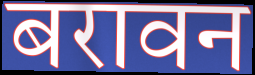
बरावन